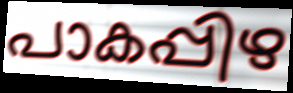
പാകപ്പിഴ